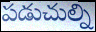
పడుచుల్ని